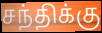
சந்திக்கு